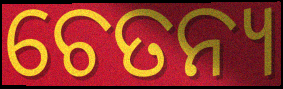
ଚେତନ୍ୟ